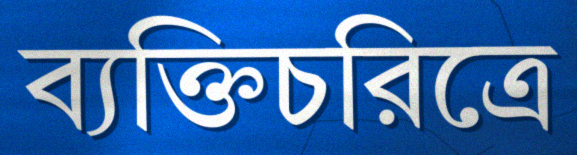
ব্যক্তিচরিত্রে